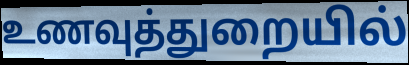
உணவுத்துறையில்